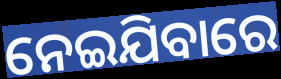
ନେଇଯିବାରେ